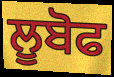
ਲੂਬੋਫ